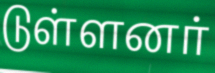
டுள்ளனர்